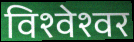
विश्वेश्वर